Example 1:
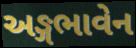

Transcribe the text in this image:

અઙ્ગભાવેન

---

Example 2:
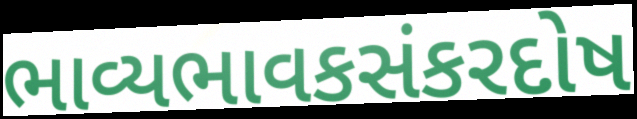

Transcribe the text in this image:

ભાવ્યભાવકસંકરદોષ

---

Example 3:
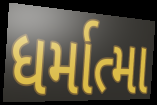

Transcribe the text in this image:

ધર્માત્મા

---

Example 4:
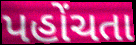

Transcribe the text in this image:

પહોંચતા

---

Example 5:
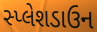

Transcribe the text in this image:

સ્પ્લેશડાઉન